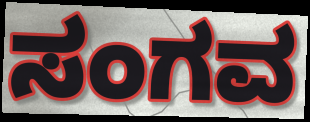
ಸಂಗವ